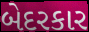
બેદરકાર